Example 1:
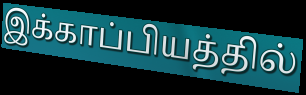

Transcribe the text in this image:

இக்காப்பியத்தில்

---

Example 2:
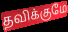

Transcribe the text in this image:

தவிக்குமே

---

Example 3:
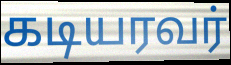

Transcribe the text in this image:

கடியரவர்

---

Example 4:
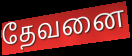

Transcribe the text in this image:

தேவனை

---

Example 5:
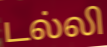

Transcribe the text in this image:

டல்லி